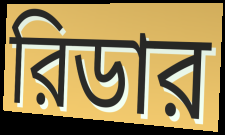
রিডার